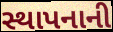
સ્થાપનાની